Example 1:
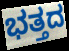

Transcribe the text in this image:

ಭತ್ತದ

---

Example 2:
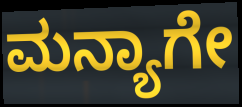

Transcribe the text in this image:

ಮನ್ಯಾಗೇ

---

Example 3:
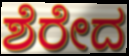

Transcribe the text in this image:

ಶೆರೇದ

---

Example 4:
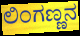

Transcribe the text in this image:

ಲಿಂಗಣ್ಣನ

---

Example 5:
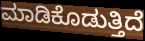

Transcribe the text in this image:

ಮಾಡಿಕೊಡುತ್ತಿದೆ